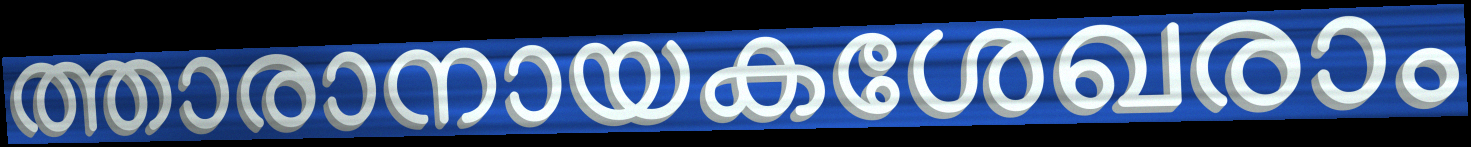
ത്താരാനായകശേഖരാം